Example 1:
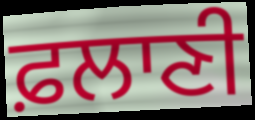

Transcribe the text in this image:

ਫ਼ਲਾਣੀ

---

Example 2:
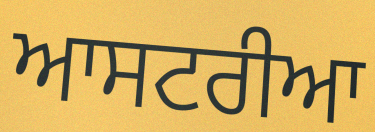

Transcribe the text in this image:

ਆਸਟਰੀਆ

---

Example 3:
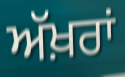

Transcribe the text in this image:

ਅੱਖ਼ਰਾਂ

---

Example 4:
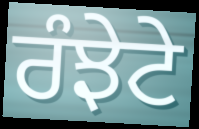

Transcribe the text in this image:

ਰੰਝੇਟੇ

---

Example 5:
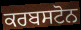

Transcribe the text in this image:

ਕਰਬਸਟੋਨ